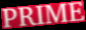
PRIME